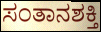
ಸಂತಾನಶಕ್ತಿ